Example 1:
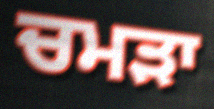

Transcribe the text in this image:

ਚਮੜਾ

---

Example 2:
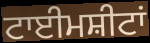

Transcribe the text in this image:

ਟਾਈਮਸ਼ੀਟਾਂ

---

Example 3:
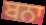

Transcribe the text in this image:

ਬਨਾ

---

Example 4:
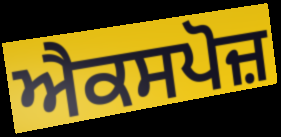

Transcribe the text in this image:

ਐਕਸਪੋਜ਼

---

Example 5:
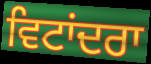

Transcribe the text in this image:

ਵਿਟਾਂਦਰਾ